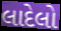
લાદેલો